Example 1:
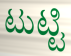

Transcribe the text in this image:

ಟುಟ್ಟಿ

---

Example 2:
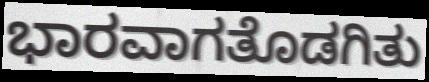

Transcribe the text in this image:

ಭಾರವಾಗತೊಡಗಿತು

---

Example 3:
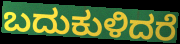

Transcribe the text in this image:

ಬದುಕುಳಿದರೆ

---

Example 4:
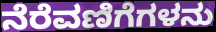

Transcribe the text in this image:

ನೆರೆವಣಿಗೆಗಳನು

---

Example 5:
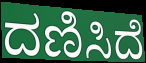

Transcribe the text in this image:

ದಣಿಸಿದೆ